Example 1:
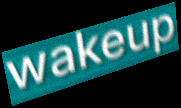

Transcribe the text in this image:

wakeup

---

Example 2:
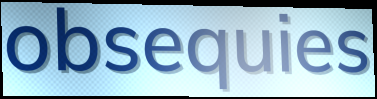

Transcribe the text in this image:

obsequies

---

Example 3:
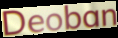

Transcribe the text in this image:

Deoban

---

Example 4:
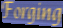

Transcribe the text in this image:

Forging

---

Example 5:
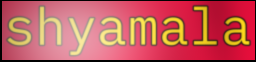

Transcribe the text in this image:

shyamala